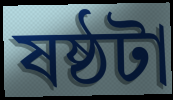
ষষ্ঠটা